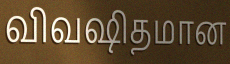
விவஷிதமான